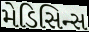
મેડિસિન્સ